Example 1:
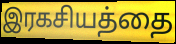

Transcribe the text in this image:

இரகசியத்தை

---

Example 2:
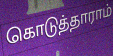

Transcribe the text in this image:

கொடுத்தாராம்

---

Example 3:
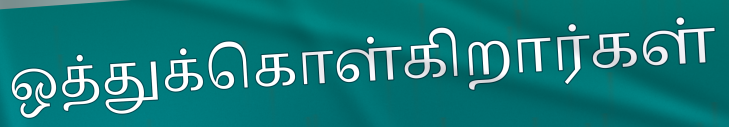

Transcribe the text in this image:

ஒத்துக்கொள்கிறார்கள்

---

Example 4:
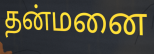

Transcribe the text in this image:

தன்மனை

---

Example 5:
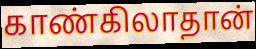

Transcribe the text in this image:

காண்கிலாதான்